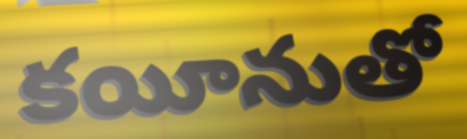
కయీనుతో